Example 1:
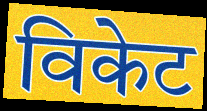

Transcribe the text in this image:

विकेट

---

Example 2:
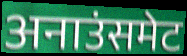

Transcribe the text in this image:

अनाउंसमेट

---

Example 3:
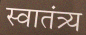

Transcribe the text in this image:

स्वातंत्र्य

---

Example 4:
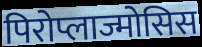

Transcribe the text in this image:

पिरोप्लाज्मोसिस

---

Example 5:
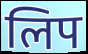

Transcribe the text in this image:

लिप